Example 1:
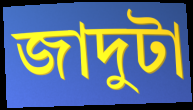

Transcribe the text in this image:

জাদুটা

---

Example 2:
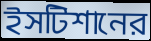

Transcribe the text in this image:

ইসটিশানের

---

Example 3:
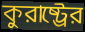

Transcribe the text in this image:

কুরাষ্ট্রের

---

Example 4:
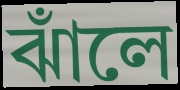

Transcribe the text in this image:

ঝাঁলে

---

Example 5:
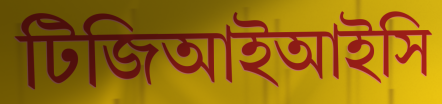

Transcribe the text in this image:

টিজিআইআইসি